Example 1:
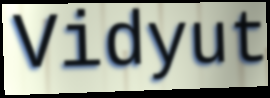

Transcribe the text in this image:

Vidyut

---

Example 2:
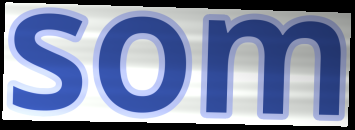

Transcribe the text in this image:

som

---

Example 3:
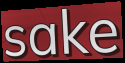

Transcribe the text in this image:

sake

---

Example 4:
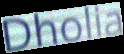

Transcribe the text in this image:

Dholia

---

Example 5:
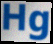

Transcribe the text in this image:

Hg